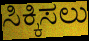
ಸಿಕ್ಕಿಸಲು